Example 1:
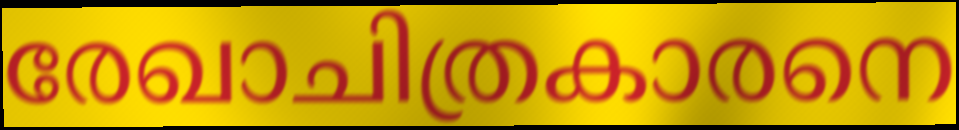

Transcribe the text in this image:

രേഖാചിത്രകാരനെ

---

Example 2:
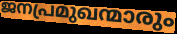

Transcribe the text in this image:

ജനപ്രമുഖന്മാരും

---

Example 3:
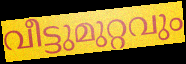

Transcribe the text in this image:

വീട്ടുമുറ്റവും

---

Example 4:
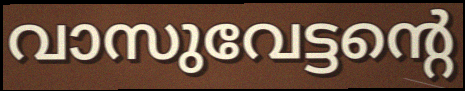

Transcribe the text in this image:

വാസുവേട്ടന്റെ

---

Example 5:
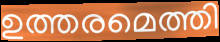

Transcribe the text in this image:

ഉത്തരമെത്തി